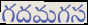
గదమగస